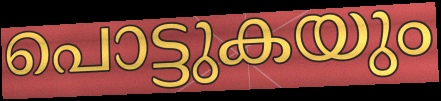
പൊട്ടുകയും